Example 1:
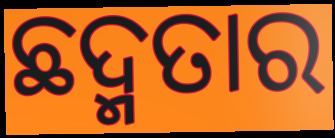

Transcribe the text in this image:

ଛଦ୍ମତାର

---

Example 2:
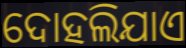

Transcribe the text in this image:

ଦୋହଲିଯାଏ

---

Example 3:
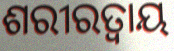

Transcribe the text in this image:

ଶରୀରତ୍ୱାୟ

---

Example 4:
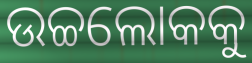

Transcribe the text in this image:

ଉଚ୍ଚଲୋକକୁ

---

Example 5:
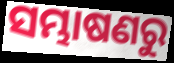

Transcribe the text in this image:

ସମ୍ଭାଷଣରୁ